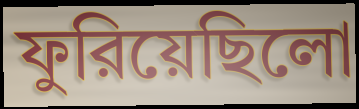
ফুরিয়েছিলো